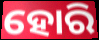
ହୋରି